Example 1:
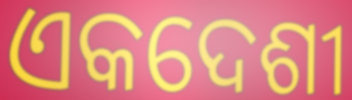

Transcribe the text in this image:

ଏକଦେଶୀ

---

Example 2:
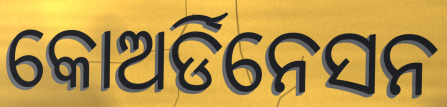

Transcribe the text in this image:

କୋଅର୍ଡିନେସନ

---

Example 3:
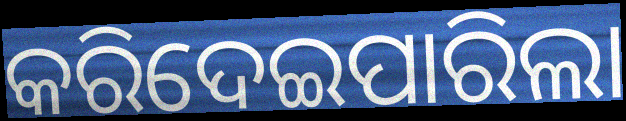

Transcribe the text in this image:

କରିଦେଇପାରିଲା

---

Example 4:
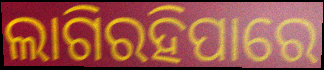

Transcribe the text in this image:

ଲାଗିରହିପାରେ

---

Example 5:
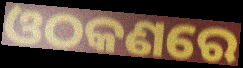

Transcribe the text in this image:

ଓଠକଣରେ